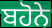
ਬਹੋਨੇ